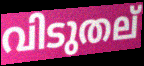
വിടുതല്